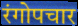
रंगोपचार